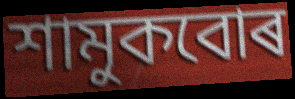
শামুকবোৰ